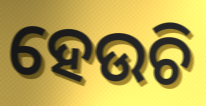
ହେଉଚି